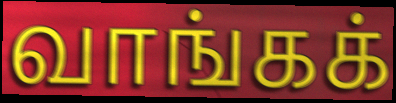
வாங்கக்